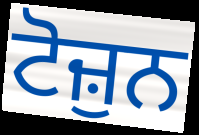
ਟੋਜ਼ੁਨ